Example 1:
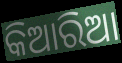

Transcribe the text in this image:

କିଆରିଆ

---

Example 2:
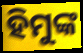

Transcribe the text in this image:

ହିମୁଙ୍କ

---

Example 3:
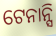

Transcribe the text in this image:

ଟେନାନ୍ସି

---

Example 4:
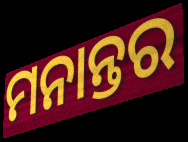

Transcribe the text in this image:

ମନାନ୍ତର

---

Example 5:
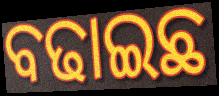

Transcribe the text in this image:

ବଢାଇଛ